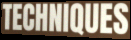
TECHNIQUES